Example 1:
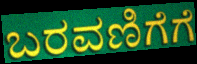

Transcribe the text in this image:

ಬರವಣಿಗೆಗೆ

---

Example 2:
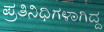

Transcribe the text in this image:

ಪ್ರತಿನಿಧಿಗಳಾಗಿದ್ದ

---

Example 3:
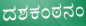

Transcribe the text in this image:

ದಶಕಂಠನಂ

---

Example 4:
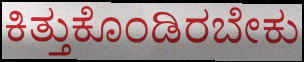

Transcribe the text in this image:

ಕಿತ್ತುಕೊಂಡಿರಬೇಕು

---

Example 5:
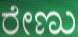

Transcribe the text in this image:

ರೇಣು